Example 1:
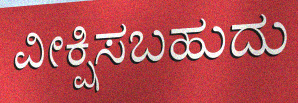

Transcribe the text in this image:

ವೀಕ್ಷಿಸಬಹುದು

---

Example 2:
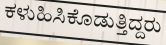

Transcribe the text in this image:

ಕಳುಹಿಸಿಕೊಡುತ್ತಿದ್ದರು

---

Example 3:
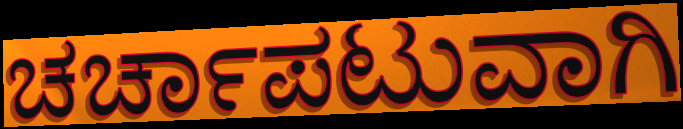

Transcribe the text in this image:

ಚರ್ಚಾಪಟುವಾಗಿ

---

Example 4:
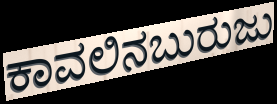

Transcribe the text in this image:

ಕಾವಲಿನಬುರುಜು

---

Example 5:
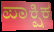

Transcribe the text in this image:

ಪಾಕ್ಷಿಕ